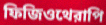
ফিজিওথেরাপি